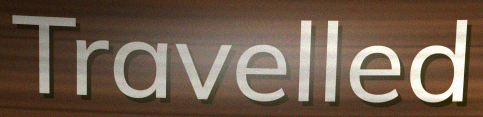
Travelled